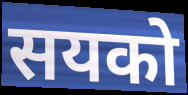
सयको